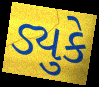
ડ્યુકે